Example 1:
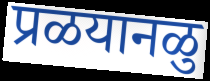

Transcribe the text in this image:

प्रळयानळु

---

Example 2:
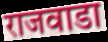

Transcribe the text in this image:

राजवाडा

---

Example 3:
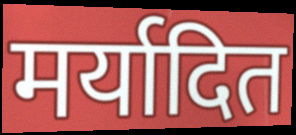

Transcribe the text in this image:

मर्यादित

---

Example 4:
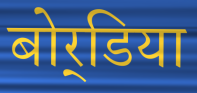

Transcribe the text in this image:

बोर्डिया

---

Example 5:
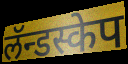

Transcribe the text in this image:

लॅन्डस्केप